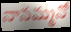
నానమ్మనో